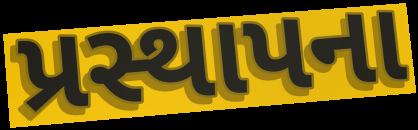
પ્રસ્થાપના